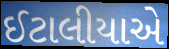
ઈટાલીયાએ